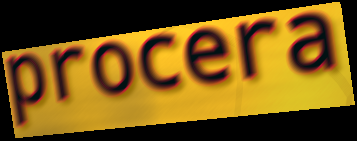
procera